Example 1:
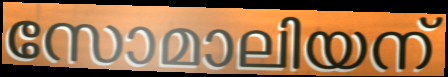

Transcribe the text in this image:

സോമാലിയന്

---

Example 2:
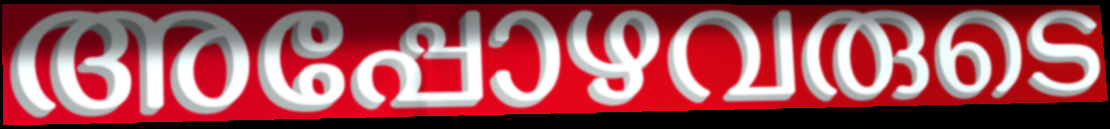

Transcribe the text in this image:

അപ്പോഴവരുടെ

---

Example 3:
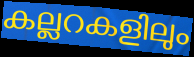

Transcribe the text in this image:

കല്ലറകളിലും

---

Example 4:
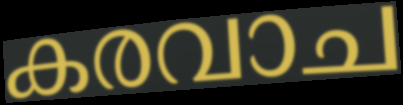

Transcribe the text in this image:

കരവാച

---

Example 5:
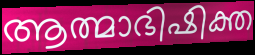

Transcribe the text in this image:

ആത്മാഭിഷിക്ത